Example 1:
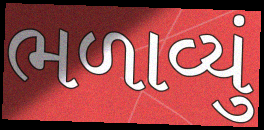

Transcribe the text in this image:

ભળાવ્યું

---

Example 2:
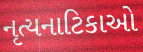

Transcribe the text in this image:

નૃત્યનાટિકાઓ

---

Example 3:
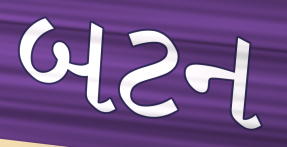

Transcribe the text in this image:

બટન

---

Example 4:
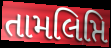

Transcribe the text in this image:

તામલિપ્તિ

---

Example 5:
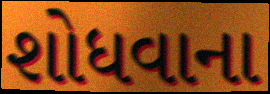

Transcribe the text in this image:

શોધવાના